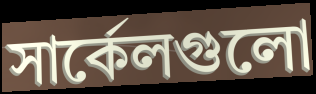
সার্কেলগুলো